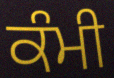
ਕੰਮੀ